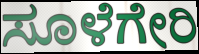
ಸೂಳೆಗೇರಿ